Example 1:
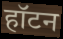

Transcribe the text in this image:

हॉटन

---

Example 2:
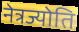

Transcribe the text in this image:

नेत्रज्योति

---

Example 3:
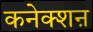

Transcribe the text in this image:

कनेक्शऩ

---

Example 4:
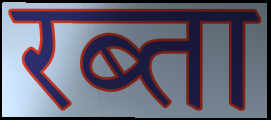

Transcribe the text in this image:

रब्ता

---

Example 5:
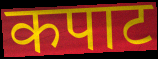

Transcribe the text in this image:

कपाट